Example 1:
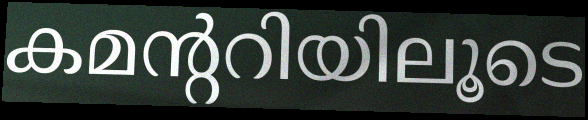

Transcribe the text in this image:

കമന്ററിയിലൂടെ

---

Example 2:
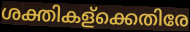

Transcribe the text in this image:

ശക്തികള്ക്കെതിരേ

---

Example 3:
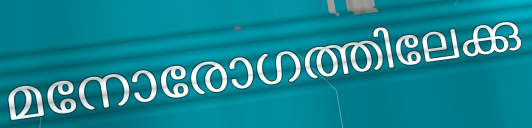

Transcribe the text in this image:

മനോരോഗത്തിലേക്കു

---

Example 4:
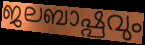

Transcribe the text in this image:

ജലബാഷ്പവും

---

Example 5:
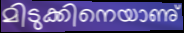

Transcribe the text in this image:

മിടുക്കിനെയാണു്